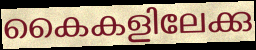
കൈകളിലേക്കു